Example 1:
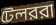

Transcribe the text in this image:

টেলররা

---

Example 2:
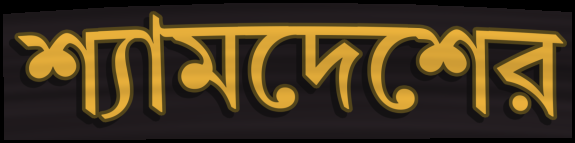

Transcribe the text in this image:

শ্যামদেশের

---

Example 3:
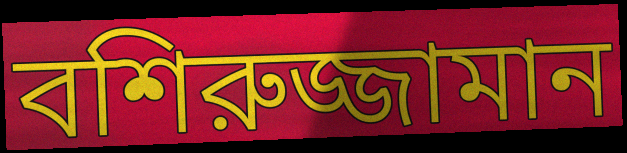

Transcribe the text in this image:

বশিরুজ্জামান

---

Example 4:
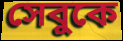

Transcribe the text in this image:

সেবুকে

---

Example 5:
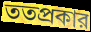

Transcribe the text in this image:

ততপ্রকার